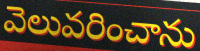
వెలువరించాను